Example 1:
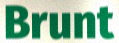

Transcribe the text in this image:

Brunt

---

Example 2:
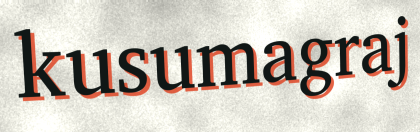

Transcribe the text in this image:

kusumagraj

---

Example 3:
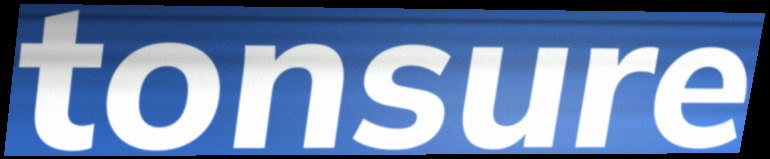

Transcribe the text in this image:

tonsure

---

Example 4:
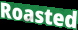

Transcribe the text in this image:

Roasted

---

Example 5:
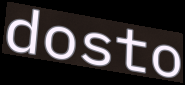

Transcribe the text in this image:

dosto